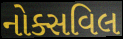
નોક્સવિલ